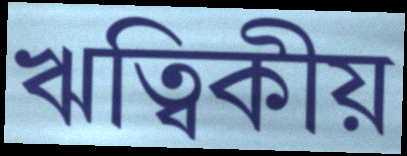
ঋত্বিকীয়